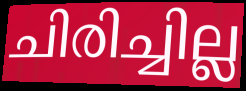
ചിരിച്ചില്ല